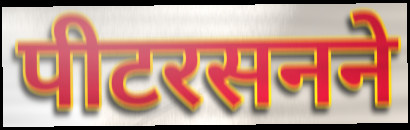
पीटरसनने